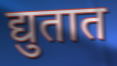
द्युतात